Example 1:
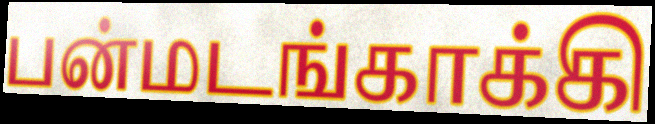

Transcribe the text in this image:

பன்மடங்காக்கி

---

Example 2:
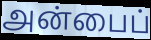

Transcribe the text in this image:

அன்பைப்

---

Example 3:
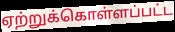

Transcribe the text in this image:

ஏற்றுக்கொள்ளப்பட்ட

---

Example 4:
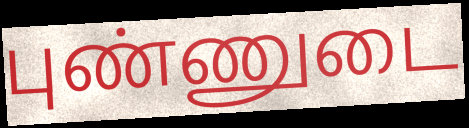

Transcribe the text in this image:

புண்ணுடை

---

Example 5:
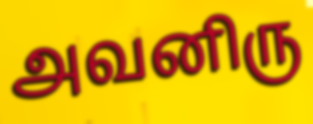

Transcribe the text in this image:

அவனிரு